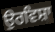
ਉਰਵਿਸ਼ਾ